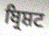
ਬ੍ਰਿਸ਼ਟ